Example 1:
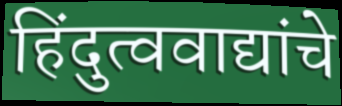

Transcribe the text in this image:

हिंदुत्ववाद्यांचे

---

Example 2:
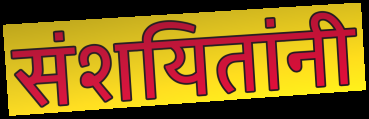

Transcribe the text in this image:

संशयितांनी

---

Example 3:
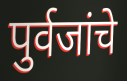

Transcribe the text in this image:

पुर्वजांचे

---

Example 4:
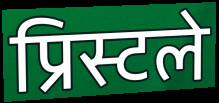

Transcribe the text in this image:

प्रिस्टले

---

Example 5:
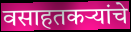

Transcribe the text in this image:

वसाहतकऱ्यांचे